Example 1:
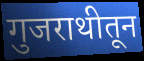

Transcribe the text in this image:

गुजराथीतून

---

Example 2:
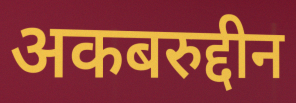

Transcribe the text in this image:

अकबरुद्दीन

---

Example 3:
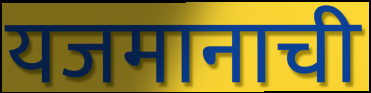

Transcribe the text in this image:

यजमानाची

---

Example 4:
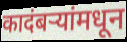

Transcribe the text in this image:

कादंबर्‍यांमधून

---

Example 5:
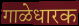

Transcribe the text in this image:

गाळेधारक